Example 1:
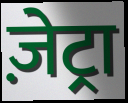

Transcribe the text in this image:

ज़ेट्रा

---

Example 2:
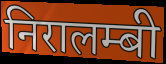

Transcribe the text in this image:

निरालम्बी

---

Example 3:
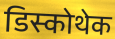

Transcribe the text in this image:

डिस्कोथेक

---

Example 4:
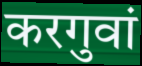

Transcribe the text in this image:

करगुवां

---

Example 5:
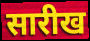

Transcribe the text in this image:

सारीख